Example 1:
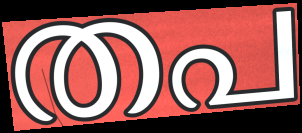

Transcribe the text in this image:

തപ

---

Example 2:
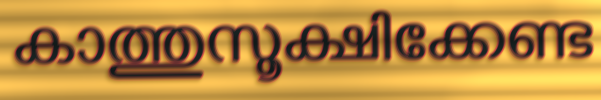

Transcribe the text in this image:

കാത്തുസൂക്ഷിക്കേണ്ട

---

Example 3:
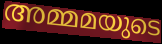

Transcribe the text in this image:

അമ്മമയുടെ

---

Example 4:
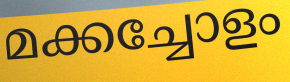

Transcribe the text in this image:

മക്കച്ചോളം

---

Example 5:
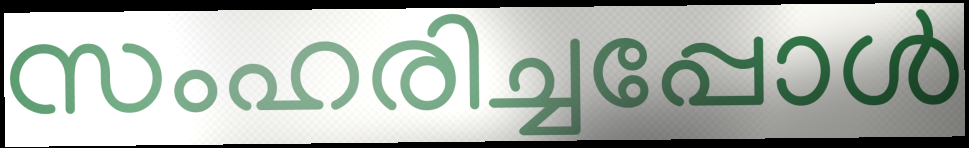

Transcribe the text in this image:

സംഹരിച്ചപ്പോൾ